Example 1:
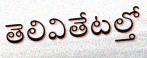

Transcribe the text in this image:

తెలివితేటల్తో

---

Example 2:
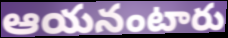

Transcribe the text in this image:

ఆయనంటారు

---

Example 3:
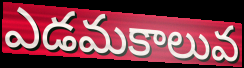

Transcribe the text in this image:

ఎడమకాలువ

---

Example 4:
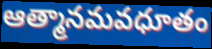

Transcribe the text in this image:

ఆత్మానమవధూతం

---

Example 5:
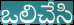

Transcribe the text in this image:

ఒలిచేసి